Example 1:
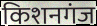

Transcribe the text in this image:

किशनगंज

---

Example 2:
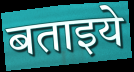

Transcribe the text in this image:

बताइये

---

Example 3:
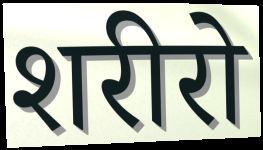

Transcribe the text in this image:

शरीरो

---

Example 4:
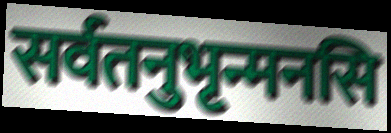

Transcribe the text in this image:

सर्वतनुभृन्मनसि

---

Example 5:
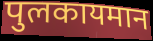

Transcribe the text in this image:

पुलकायमान